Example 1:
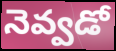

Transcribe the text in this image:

నెవ్వడో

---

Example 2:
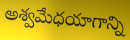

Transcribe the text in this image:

అశ్వమేధయాగాన్ని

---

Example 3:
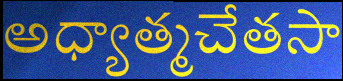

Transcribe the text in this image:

అధ్యాత్మచేతసా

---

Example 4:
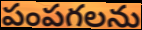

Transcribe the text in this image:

పంపగలను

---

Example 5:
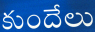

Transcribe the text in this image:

కుందేలు